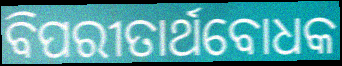
ବିପରୀତାର୍ଥବୋଧକ